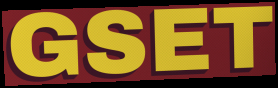
GSET